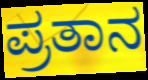
ಪ್ರತಾನ